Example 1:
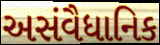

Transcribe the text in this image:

અસંવૈધાનિક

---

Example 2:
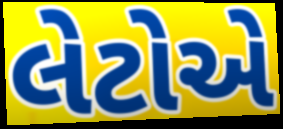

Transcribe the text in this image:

લેટોએ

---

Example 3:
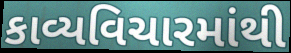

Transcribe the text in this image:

કાવ્યવિચારમાંથી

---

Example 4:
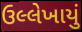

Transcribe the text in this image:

ઉલ્લેખાયું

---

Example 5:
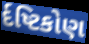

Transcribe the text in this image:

ર્દષ્ટિકોણ